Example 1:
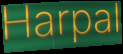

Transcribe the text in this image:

Harpal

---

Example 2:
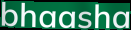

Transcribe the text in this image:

bhaasha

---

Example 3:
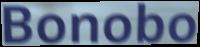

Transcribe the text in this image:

Bonobo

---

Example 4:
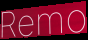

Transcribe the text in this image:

Remo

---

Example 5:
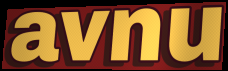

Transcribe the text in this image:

avnu